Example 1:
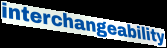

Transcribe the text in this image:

interchangeability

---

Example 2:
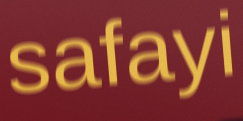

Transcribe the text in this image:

safayi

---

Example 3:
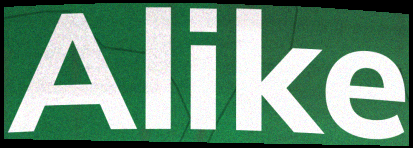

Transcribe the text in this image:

Alike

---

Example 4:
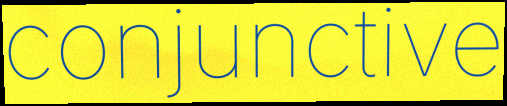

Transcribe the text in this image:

conjunctive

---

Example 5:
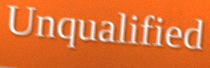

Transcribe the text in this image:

Unqualified